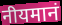
नीयमानं